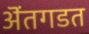
ऄंतगडत